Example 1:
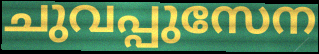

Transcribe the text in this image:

ചുവപ്പുസേന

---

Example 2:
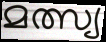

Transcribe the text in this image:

മത്സ്യ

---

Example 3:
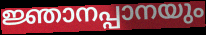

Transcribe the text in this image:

ജ്ഞാനപ്പാനയും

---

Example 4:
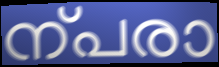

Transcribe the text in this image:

ന്പരാ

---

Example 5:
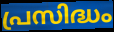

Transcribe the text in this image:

പ്രസിദ്ധം